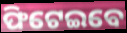
ଫିଟେଇବେ